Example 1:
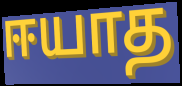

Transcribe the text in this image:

ஈயாத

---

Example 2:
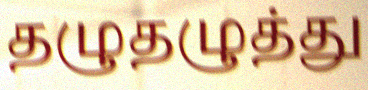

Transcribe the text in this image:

தழுதழுத்து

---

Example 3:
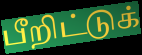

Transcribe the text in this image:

பீறிட்டுக்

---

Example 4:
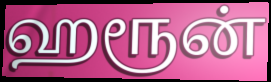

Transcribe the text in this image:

ஹரூன்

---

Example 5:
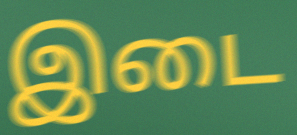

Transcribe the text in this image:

இடை